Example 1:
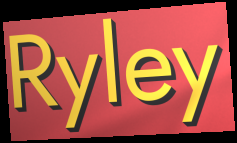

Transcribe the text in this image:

Ryley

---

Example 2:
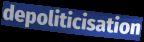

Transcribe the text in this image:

depoliticisation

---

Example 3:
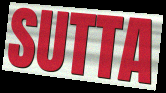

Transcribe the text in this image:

SUTTA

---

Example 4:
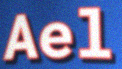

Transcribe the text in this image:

Ael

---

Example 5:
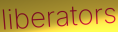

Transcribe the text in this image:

liberators